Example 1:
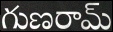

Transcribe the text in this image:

గుణరామ్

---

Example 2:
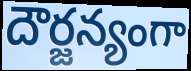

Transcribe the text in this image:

దౌర్జన్యంగా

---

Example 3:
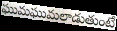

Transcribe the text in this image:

ఘుమఘుమలాడుతుంటే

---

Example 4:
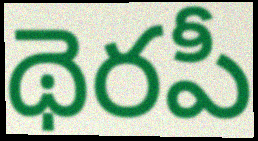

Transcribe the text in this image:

థెరపీ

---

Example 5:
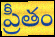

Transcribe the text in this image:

ప్రీతం